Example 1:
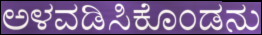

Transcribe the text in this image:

ಅಳವಡಿಸಿಕೊಂಡನು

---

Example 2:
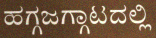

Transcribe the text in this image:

ಹಗ್ಗಜಗ್ಗಾಟದಲ್ಲಿ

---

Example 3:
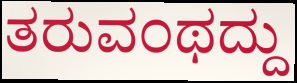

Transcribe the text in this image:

ತರುವಂಥದ್ದು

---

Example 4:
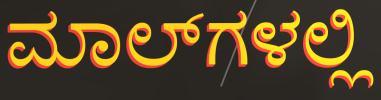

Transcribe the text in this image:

ಮಾಲ್‌ಗಳಲ್ಲಿ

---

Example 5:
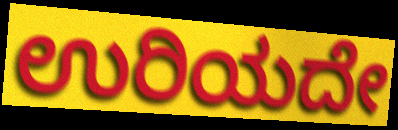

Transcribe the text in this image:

ಉರಿಯದೇ